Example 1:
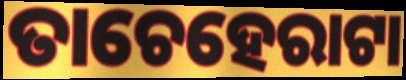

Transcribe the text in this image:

ତାଚେହେରାଟା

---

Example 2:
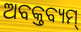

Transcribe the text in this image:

ଅବକ୍ତବ୍ୟମ୍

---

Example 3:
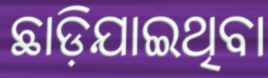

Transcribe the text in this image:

ଛାଡ଼ିଯାଇଥିବା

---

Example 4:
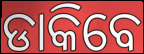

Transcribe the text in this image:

ଡାକିବେ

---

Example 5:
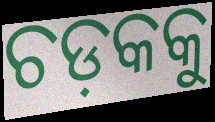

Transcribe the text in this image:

ଚଡ଼କକୁ